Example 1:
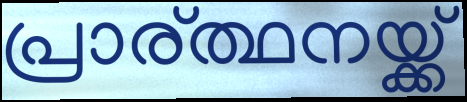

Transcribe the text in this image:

പ്രാര്ത്ഥനയ്ക്ക്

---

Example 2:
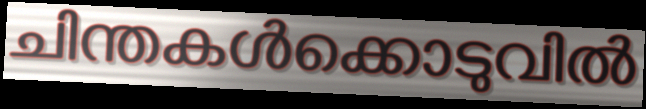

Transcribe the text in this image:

ചിന്തകൾക്കൊടുവിൽ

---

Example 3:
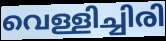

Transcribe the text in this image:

വെള്ളിച്ചിരി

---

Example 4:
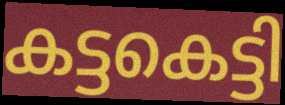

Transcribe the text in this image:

കട്ടകെട്ടി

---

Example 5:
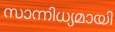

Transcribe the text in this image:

സാന്നിധ്യമായി